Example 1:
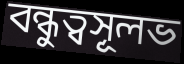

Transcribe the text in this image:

বন্ধুত্বসূলভ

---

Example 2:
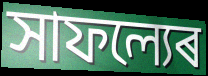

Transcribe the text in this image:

সাফল্যেৰ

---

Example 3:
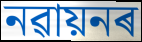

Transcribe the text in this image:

নৱায়নৰ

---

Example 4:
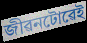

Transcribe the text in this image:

জীৱনটোৱেই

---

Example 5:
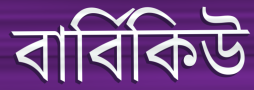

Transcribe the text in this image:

বাৰ্বিকিউ